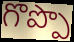
గొప్పొ